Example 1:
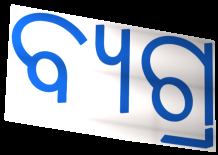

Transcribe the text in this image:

ବ୍ୟଗ୍ର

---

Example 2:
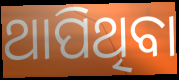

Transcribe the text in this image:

ଥାପିଥିବା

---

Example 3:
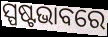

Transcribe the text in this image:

ସ୍ପଷ୍ଟଭାବରେ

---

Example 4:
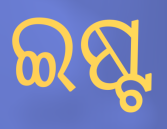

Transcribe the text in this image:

ଇଷ୍ଟ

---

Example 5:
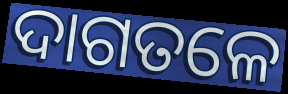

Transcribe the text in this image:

ଦାଗତଳେ